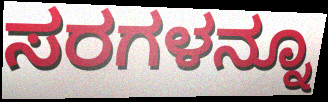
ಸರಗಳನ್ನೂ